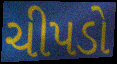
ચીપડો